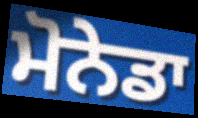
ਮੋਨੇਡਾ